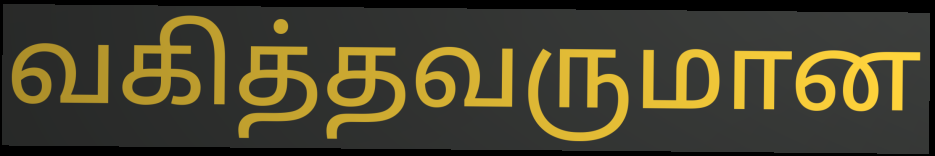
வகித்தவருமான